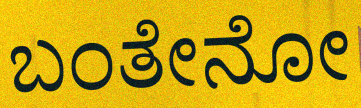
ಬಂತೇನೋ